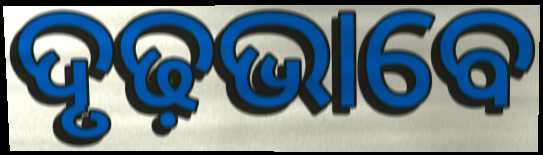
ଦୃଢ଼ଭାବେ